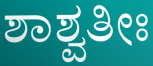
ಶಾಶ್ವತೀಃ